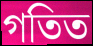
গতিত